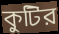
কুটির